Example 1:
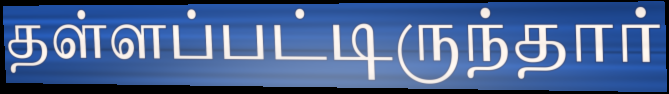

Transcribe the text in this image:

தள்ளப்பட்டிருந்தார்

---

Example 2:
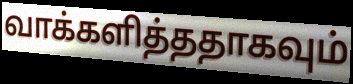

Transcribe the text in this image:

வாக்களித்ததாகவும்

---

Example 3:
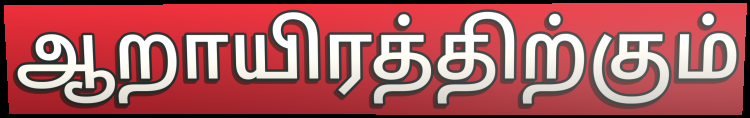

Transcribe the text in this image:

ஆறாயிரத்திற்கும்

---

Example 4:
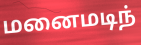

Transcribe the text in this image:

மனைமடிந்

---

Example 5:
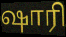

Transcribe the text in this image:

ஷாரி